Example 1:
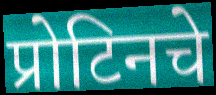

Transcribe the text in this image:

प्रोटिनचे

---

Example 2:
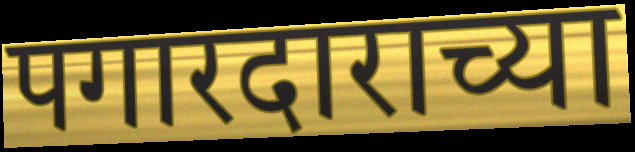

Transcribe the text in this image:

पगारदाराच्या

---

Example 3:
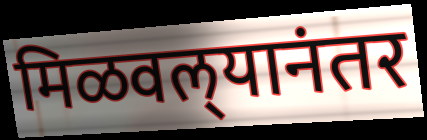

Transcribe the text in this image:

मिळवल्यानंतर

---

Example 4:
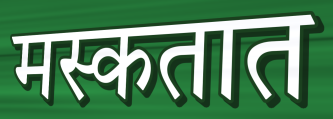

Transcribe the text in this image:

मस्कतात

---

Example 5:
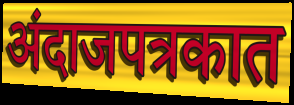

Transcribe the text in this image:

अंदाजपत्रकात